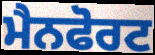
ਮੈਨਫੋਰਟ